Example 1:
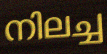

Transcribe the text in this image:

നിലച്ച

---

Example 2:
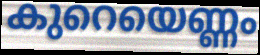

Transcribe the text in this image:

കുറെയെണ്ണം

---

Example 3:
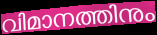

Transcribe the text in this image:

വിമാനത്തിനും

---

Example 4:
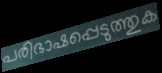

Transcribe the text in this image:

പരിഭാഷപ്പെടുത്തുക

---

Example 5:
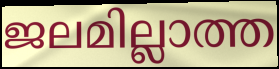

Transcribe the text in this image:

ജലമില്ലാത്ത